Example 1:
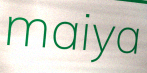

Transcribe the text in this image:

maiya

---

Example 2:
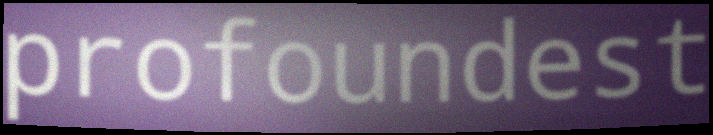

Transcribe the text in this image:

profoundest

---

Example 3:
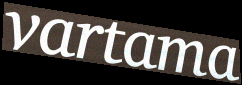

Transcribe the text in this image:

vartama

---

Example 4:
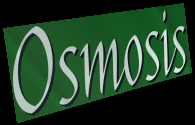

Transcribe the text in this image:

Osmosis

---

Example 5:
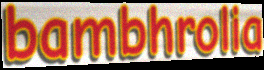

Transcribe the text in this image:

bambhrolia